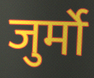
जुर्मो